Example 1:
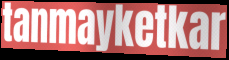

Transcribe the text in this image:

tanmayketkar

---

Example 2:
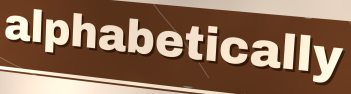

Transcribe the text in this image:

alphabetically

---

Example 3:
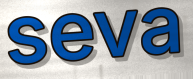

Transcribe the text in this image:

seva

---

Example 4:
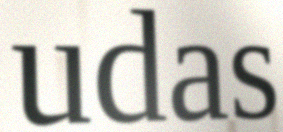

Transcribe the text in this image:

udas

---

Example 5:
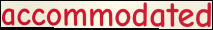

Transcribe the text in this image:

accommodated